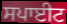
ਸਪਾਈਟ